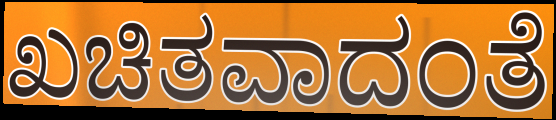
ಖಚಿತವಾದಂತೆ